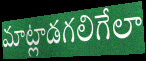
మాట్లాడగలిగేలా